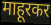
माहूरकर